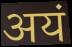
अयं